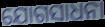
ଯୋଗସାଧନା